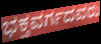
ಭಕ್ತವರ್ಗದವರು